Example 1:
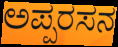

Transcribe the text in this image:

ಅಪ್ಪರಸನ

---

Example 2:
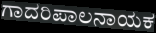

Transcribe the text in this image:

ಗಾದರಿಪಾಲನಾಯಕ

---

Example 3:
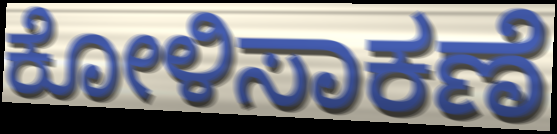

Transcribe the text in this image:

ಕೋಳಿಸಾಕಣೆ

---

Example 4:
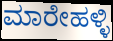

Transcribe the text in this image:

ಮಾರೇಹಳ್ಳಿ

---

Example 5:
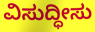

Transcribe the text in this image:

ವಿಸುದ್ಧೀಸು